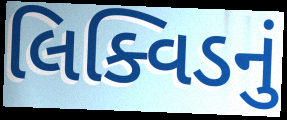
લિક્વિડનું